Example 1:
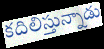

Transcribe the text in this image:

కదిలిస్తున్నాడు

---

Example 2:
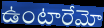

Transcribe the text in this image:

ఉంటారేమో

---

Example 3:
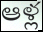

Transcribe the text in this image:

ఆళ్ల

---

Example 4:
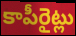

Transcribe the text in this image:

కాపీరైట్లు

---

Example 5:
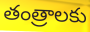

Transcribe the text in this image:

తంత్రాలకు